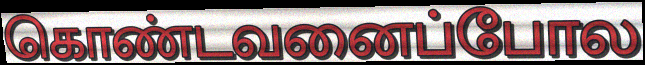
கொண்டவனைப்போல